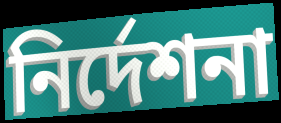
নিৰ্দেশনা